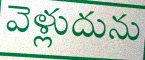
వెళ్లుదును